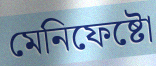
মেনিফেষ্টো